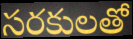
సరకులతో